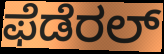
ಫೆಡೆರಲ್